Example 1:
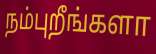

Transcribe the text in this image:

நம்புறீங்களா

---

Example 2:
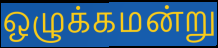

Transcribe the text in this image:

ஒழுக்கமன்று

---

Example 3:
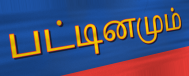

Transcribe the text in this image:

பட்டினமும்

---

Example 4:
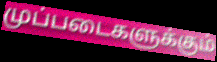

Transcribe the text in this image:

முப்படைகளுக்கும்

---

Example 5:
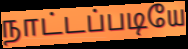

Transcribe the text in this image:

நாட்டப்படியே